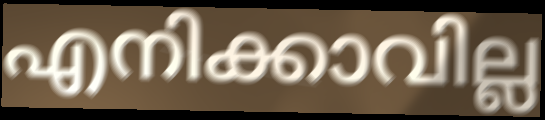
എനിക്കാവില്ല